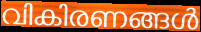
വികിരണങ്ങൾ